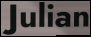
Julian